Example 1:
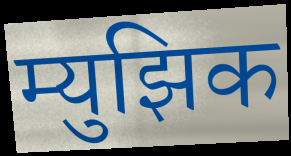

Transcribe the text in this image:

म्युझिक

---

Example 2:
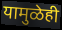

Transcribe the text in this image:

यामुळेही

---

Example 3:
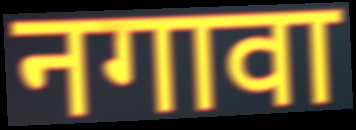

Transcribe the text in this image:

नगावा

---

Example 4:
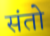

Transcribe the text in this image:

संतो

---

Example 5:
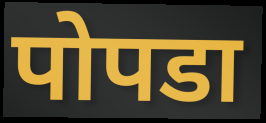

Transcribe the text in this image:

पोपडा